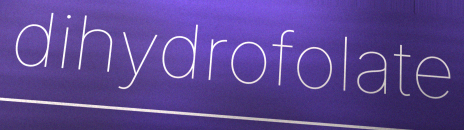
dihydrofolate